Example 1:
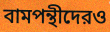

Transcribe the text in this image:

বামপন্থীদেরও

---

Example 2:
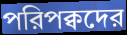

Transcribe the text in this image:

পরিপক্বদের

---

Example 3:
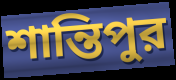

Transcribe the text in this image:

শান্তিপুর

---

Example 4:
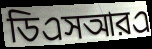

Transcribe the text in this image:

ডিএসআরএ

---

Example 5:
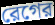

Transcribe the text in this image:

রেগের